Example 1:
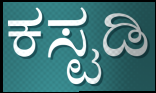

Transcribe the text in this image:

ಕಸ್ಟಡಿ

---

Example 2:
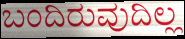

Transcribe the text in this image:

ಬಂದಿರುವುದಿಲ್ಲ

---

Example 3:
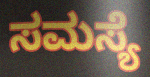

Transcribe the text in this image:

ಸಮಸ್ಯೆ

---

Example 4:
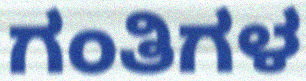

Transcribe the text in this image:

ಗಂತಿಗಳ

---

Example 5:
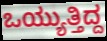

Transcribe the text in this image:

ಒಯ್ಯುತ್ತಿದ್ದ